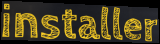
installer